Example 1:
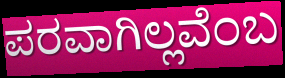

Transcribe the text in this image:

ಪರವಾಗಿಲ್ಲವೆಂಬ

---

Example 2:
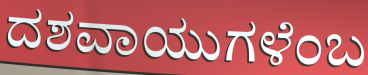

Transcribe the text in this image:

ದಶವಾಯುಗಳೆಂಬ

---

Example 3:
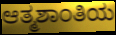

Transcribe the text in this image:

ಆತ್ಮಶಾಂತಿಯ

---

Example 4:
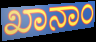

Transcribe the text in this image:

ಖಾನಾಂ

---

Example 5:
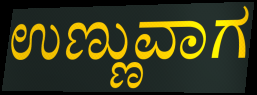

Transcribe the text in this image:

ಉಣ್ಣುವಾಗ